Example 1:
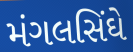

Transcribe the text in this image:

મંગલસિંઘે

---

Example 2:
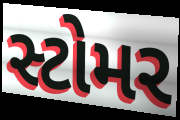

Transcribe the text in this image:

સ્ટોમર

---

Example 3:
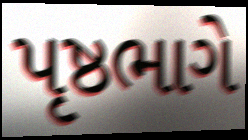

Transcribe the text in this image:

પૃષ્ઠભાગે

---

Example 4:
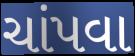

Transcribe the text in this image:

ચાંપવા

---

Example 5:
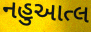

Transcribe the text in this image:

નહુઆત્લ